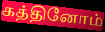
கத்தினோம்